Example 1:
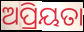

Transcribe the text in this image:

ଅପ୍ରିୟତା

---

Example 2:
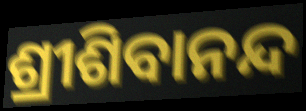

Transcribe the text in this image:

ଶ୍ରୀଶିବାନନ୍ଦ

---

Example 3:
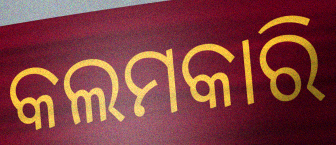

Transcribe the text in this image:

କଲମକାରି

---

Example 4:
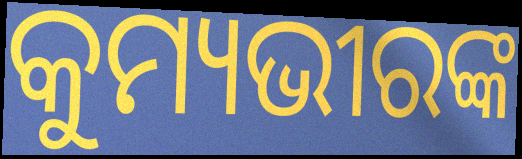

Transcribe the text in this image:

କୁମ୍ୟଭୀରଙ୍କ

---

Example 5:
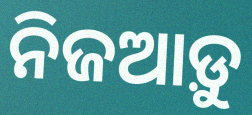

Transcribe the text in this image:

ନିଜଆଡ଼ୁ